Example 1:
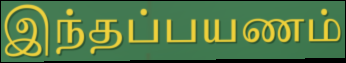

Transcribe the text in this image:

இந்தப்பயணம்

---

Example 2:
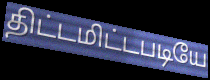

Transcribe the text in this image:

திட்டமிட்டபடியே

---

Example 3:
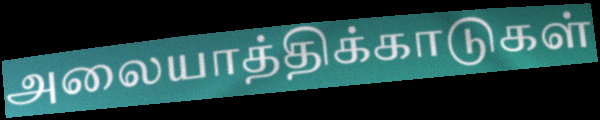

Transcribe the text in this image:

அலையாத்திக்காடுகள்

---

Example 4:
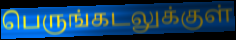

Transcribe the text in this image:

பெருங்கடலுக்குள்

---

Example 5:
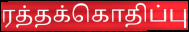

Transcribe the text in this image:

ரத்தக்கொதிப்பு